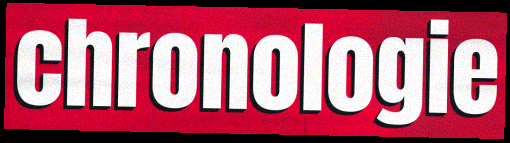
chronologie